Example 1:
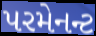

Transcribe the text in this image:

પરમેનન્ટ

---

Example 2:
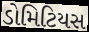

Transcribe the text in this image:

ડોમિટિયસ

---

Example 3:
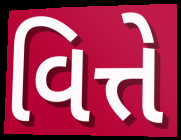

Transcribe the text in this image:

વિત્તે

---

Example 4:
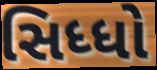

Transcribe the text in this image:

સિધ્ધો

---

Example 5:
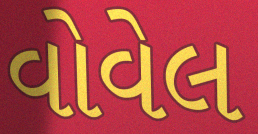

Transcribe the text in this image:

વોવેલ